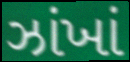
ઝાંખાં